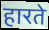
हारते